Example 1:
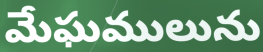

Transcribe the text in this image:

మేఘములును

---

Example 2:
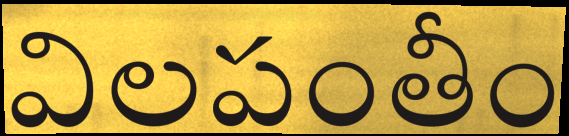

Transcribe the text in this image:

విలపంతీం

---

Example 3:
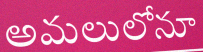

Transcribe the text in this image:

అమలులోనూ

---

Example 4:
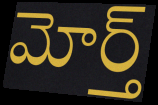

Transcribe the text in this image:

మోర్త్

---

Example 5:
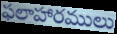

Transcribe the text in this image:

ఫలాహారములు